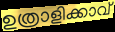
ഉത്രാളിക്കാവ്